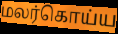
மலர்கொய்ய